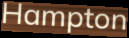
Hampton